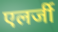
एलर्जी